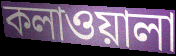
কলাওয়ালা